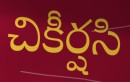
చికీర్షసి